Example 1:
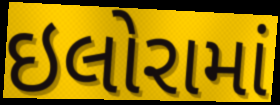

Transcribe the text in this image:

ઇલોરામાં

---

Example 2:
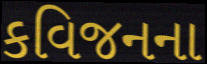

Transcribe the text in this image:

કવિજનના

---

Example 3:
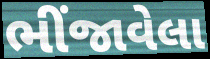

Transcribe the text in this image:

ભીંજાવેલા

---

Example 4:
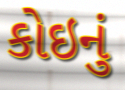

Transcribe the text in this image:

કોઇનું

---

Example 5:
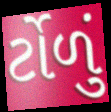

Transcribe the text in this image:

ર્ટોળું